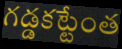
గడ్డకట్టేంత